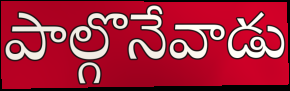
పాల్గొనేవాడు